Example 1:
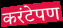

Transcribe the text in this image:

करंटेपण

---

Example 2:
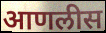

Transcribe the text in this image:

आणलीस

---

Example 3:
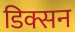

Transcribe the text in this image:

डिक्सन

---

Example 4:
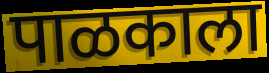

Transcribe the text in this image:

पाळकाला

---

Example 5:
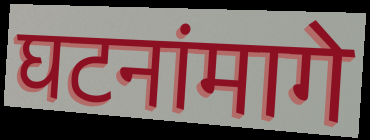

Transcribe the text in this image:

घटनांमागे